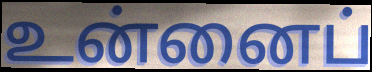
உன்னைப்